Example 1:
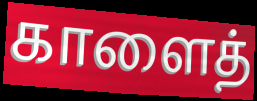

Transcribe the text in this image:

காளைத்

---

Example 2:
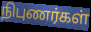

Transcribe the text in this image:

நிபுணர்கள்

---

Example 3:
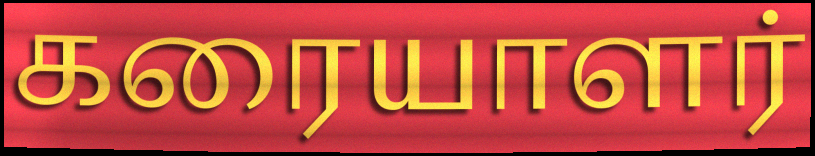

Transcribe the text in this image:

கரையாளர்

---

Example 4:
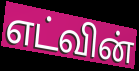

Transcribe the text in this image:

எட்வின்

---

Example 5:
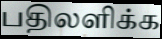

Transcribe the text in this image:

பதிலளிக்க